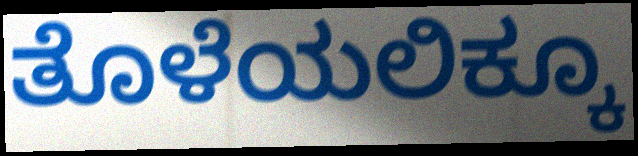
ತೊಳೆಯಲಿಕ್ಕೂ